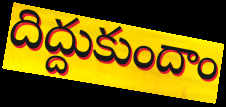
దిద్దుకుందాం